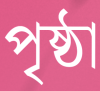
পৃষ্ঠা